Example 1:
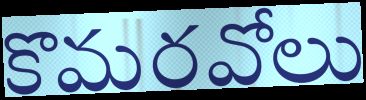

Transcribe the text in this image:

కొమరవోలు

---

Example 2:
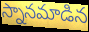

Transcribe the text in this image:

స్నానమాడిన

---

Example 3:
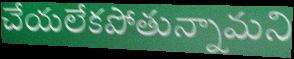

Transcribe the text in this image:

చేయలేకపోతున్నామని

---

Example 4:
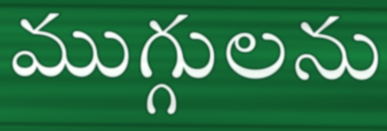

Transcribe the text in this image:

ముగ్గులను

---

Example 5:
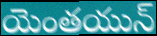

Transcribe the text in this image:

యెంతయున్